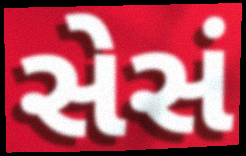
સેસં